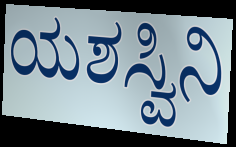
ಯಶಸ್ವಿನಿ